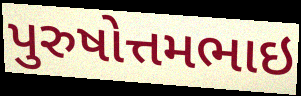
પુરુષોત્તમભાઇ